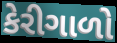
કેરીગાળો